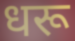
धरू